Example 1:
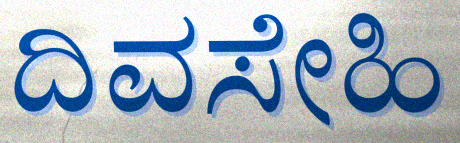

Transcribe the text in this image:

ದಿವಸೇಹಿ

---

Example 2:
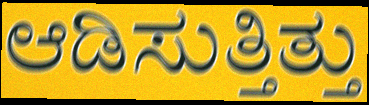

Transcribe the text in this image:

ಆಡಿಸುತ್ತಿತ್ತು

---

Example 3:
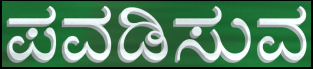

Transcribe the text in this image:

ಪವಡಿಸುವ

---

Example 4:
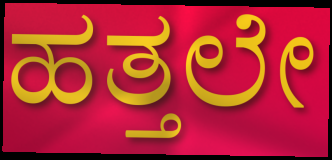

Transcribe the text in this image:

ಹತ್ತಲೇ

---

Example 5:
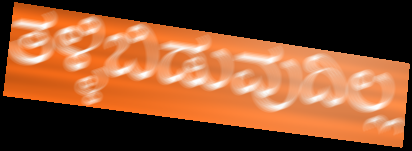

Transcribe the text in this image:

ತಳ್ಳಿಬಿಡುವುದಿಲ್ಲ